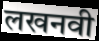
लखनवी